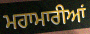
ਮਹਾਮਾਰੀਆਂ